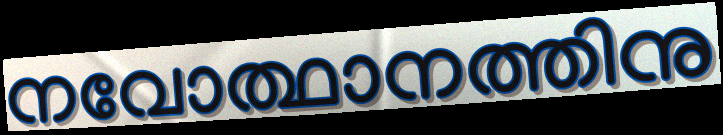
നവോത്ഥാനത്തിനു